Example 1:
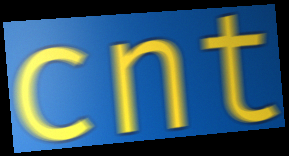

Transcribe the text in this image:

cnt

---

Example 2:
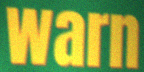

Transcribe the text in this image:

warn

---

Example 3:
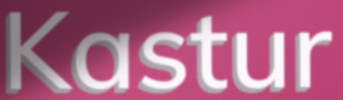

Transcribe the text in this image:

Kastur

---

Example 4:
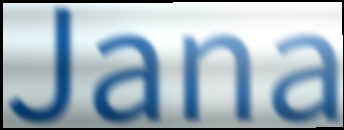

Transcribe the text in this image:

Jana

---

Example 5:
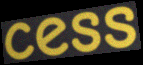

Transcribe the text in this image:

cess